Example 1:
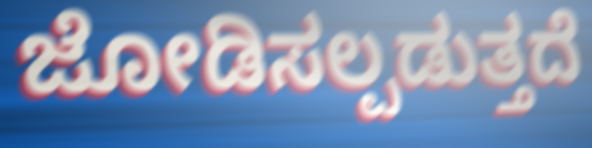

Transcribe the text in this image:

ಜೋಡಿಸಲ್ಪಡುತ್ತದೆ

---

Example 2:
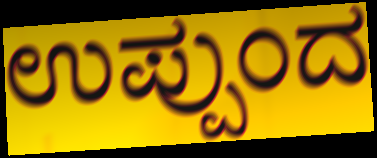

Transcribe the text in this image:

ಉಪ್ಪುಂದ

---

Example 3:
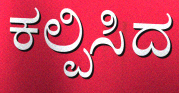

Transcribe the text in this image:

ಕಲ್ಪಿಸಿದ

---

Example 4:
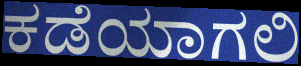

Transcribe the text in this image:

ಕಡೆಯಾಗಲಿ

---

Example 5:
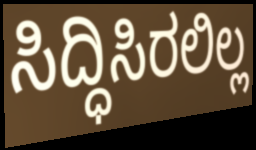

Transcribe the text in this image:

ಸಿದ್ಧಿಸಿರಲಿಲ್ಲ